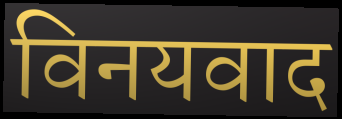
विनयवाद